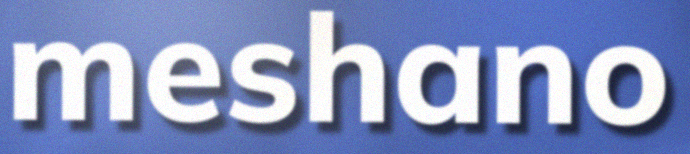
meshano